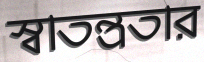
স্বাতন্ত্রতার